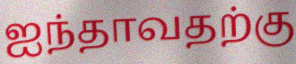
ஐந்தாவதற்கு